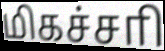
மிகச்சரி